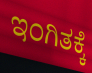
ಇಂಗಿತಕ್ಕೆ